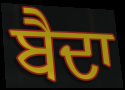
ਬੈਦਾ